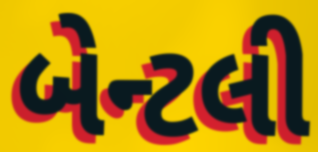
બેન્ટલી